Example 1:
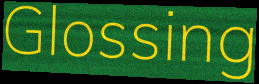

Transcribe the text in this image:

Glossing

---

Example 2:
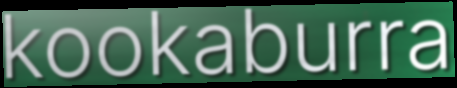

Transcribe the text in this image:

kookaburra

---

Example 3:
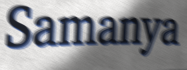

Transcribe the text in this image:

Samanya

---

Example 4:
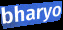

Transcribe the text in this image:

bharyo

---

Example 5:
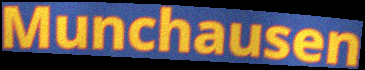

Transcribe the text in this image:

Munchausen